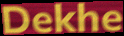
Dekhe